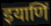
इयाणिं